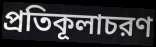
প্রতিকূলাচরণ